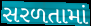
સરળતામાં